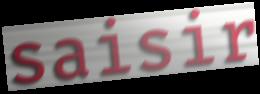
saisir